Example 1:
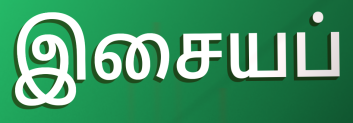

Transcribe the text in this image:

இசையப்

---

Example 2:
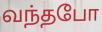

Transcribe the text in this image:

வந்தபோ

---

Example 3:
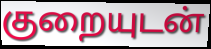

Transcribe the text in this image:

குறையுடன்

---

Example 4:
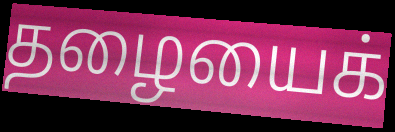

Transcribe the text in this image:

தழையைக்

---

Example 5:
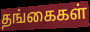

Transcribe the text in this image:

தங்கைகள்